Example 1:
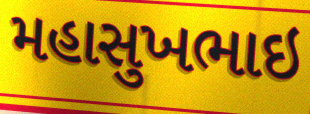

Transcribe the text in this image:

મહાસુખભાઇ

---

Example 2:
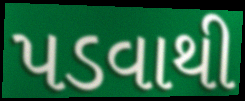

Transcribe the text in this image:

પડવાથી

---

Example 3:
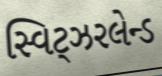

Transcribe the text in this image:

સ્વિટ્ઝરલેન્ડ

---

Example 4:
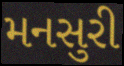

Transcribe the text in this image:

મનસુરી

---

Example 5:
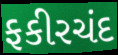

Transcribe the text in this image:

ફકીરચંદ